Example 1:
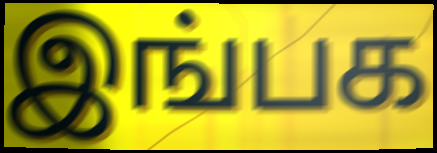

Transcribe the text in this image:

இங்பக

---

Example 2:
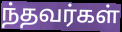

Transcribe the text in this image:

ந்தவர்கள்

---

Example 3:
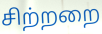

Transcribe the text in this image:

சிற்றறை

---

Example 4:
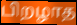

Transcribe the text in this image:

பிறழாத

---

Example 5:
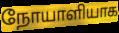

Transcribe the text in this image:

நோயாளியாக